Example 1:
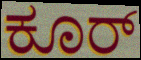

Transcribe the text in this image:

ಕೂರ್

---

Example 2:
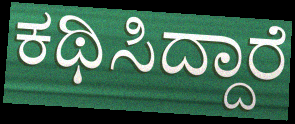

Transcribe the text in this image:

ಕಥಿಸಿದ್ದಾರೆ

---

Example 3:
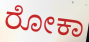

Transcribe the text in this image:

ರೋಕಾ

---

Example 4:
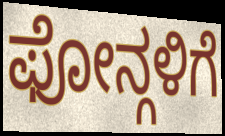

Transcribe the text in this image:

ಫೋನ್ಗಳಿಗೆ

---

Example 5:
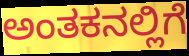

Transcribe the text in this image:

ಅಂತಕನಲ್ಲಿಗೆ